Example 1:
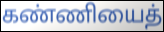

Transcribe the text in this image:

கண்ணியைத்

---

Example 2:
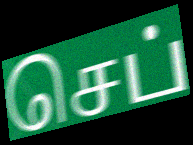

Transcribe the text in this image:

செப்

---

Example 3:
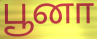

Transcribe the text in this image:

பூனா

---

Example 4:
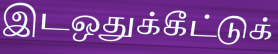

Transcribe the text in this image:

இடஒதுக்கீட்டுக்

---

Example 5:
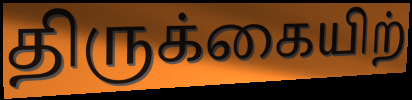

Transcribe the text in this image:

திருக்கையிற்